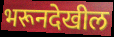
भरूनदेखील